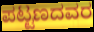
ಪಟ್ಟಣದವರ